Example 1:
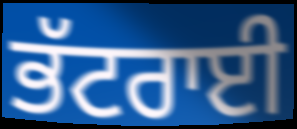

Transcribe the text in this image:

ਭੱਟਰਾਈ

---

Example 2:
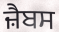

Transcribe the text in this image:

ਜ਼ੈਬਸ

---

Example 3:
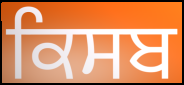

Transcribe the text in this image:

ਕਿਸਬ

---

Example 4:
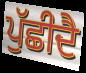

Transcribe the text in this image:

ਪੁੱਛੀਦੈ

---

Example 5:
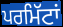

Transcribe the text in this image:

ਪਰਮਿੱਟਾਂ